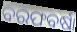
ବରଫବର୍ଷା